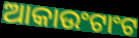
ଆକାଉଂଟାଂଟ